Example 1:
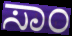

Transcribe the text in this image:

ಸಾಂ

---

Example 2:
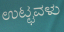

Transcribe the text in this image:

ಉಟ್ಟವಳು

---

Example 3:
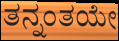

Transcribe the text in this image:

ತನ್ನಂತಯೇ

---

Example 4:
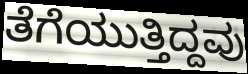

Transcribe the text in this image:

ತೆಗೆಯುತ್ತಿದ್ದವು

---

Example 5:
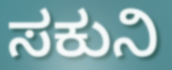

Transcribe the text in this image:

ಸಕುನಿ